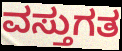
ವಸ್ತುಗತ